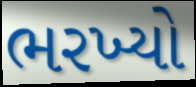
ભરખ્યો